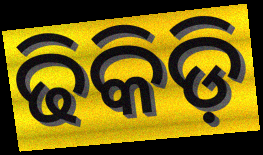
ଢିକିଡ଼ି